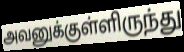
அவனுக்குள்ளிருந்து